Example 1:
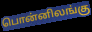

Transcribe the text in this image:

பொன்னிலங்கு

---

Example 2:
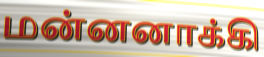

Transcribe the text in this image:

மன்னனாக்கி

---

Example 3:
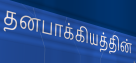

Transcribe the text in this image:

தனபாக்கியத்தின்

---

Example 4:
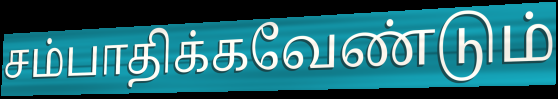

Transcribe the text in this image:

சம்பாதிக்கவேண்டும்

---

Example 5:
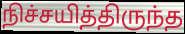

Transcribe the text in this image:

நிச்சயித்திருந்த